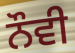
ਨੌਵੀ